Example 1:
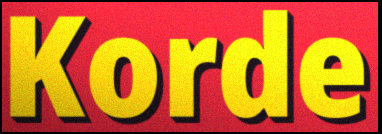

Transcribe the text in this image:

Korde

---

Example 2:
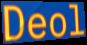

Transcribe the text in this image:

Deol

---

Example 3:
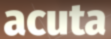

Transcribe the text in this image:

acuta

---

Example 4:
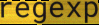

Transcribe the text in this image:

regexp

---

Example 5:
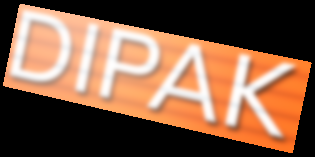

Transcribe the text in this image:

DIPAK